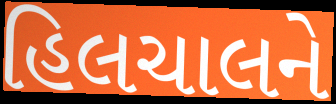
હિલચાલને